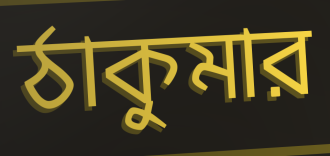
ঠাকুমার